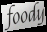
foody